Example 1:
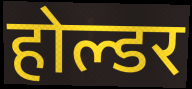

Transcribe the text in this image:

होल्डर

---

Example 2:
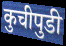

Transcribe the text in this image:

कुचीपुडी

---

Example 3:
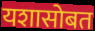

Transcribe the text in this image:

यशासोबत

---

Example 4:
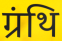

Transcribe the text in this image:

ग्रंथि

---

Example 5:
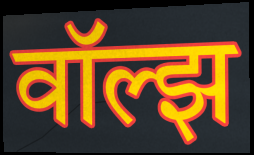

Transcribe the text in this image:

वॉल्झ